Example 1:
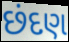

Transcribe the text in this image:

છંદણ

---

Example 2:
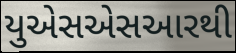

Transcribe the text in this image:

યુએસએસઆરથી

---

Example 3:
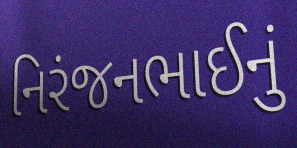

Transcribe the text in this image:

નિરંજનભાઈનું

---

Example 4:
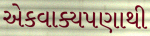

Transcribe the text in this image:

એકવાક્યપણાથી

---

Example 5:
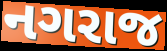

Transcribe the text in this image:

નગરાજ